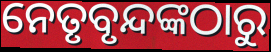
ନେତୃବୃନ୍ଦଙ୍କଠାରୁ